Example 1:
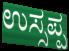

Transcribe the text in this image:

ಉಸ್ಸಪ್ಪ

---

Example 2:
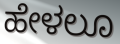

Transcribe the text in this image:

ಹೇಳಲೂ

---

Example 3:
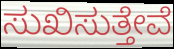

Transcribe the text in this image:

ಸುಖಿಸುತ್ತೇವೆ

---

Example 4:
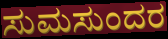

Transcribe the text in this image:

ಸುಮಸುಂದರ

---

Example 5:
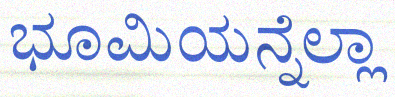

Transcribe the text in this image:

ಭೂಮಿಯನ್ನೆಲ್ಲಾ